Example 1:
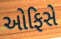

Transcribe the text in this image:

ઓફિસે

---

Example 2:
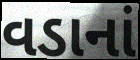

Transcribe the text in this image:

વડાનાં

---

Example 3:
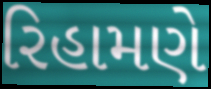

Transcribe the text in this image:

રિહામણે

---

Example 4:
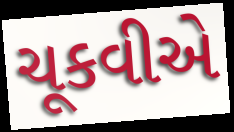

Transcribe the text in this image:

ચૂકવીએ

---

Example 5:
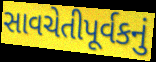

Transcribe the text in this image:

સાવચેતીપૂર્વકનું